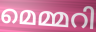
മെമ്മറി